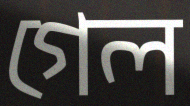
গেল